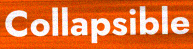
Collapsible